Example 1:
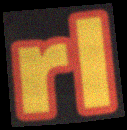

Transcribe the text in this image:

rl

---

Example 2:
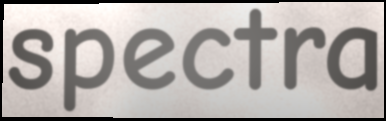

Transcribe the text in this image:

spectra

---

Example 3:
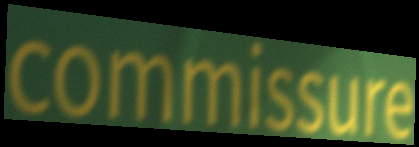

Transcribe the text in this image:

commissure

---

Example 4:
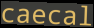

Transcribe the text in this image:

caecal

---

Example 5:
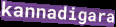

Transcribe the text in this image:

kannadigara